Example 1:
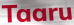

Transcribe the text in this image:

Taaru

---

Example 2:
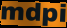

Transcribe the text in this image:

mdpi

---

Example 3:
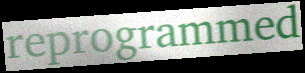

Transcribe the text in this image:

reprogrammed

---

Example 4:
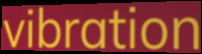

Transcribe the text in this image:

vibration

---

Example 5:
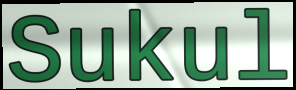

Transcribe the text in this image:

Sukul